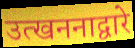
उत्खननाद्वारे